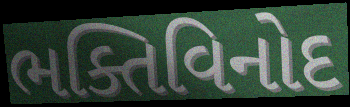
ભક્તિવિનોદ